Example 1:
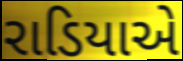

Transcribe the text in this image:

રાડિયાએ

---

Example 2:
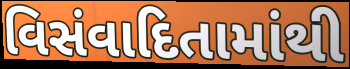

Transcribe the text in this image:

વિસંવાદિતામાંથી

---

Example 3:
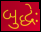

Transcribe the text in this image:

બુદ્ધેઃ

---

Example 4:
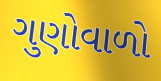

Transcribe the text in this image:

ગુણોવાળો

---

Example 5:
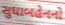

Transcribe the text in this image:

સુધાબહેનનો